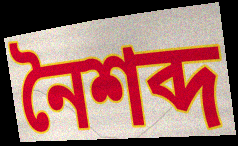
নৈশব্দ